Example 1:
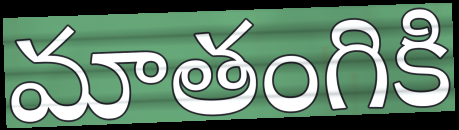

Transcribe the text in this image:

మాతంగికి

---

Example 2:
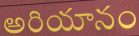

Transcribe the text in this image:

అరియానం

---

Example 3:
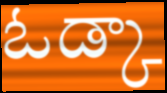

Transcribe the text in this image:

ఓడ్కా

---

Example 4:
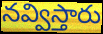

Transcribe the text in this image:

నవ్విస్తారు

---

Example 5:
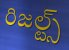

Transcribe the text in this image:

రిజల్ట్స్